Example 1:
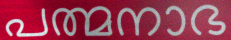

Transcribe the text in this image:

പത്മനാഭ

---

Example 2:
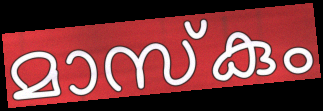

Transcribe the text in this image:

മാസ്കും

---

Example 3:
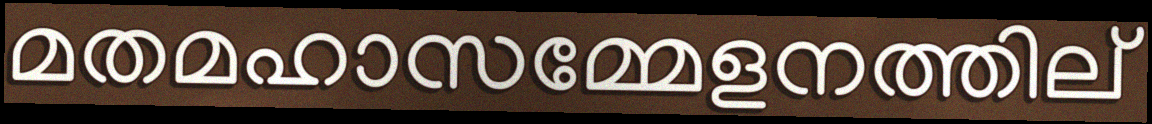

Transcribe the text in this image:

മതമഹാസമ്മേളനത്തില്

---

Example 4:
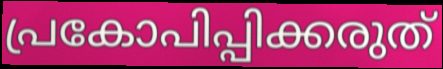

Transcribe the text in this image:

പ്രകോപിപ്പിക്കരുത്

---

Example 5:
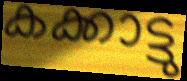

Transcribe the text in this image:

കക്കാട്ടു